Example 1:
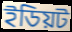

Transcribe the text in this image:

ইডিয়ট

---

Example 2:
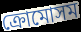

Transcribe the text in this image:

ক্রোমোসম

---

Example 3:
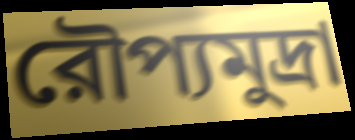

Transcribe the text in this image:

রৌপ্যমুদ্রা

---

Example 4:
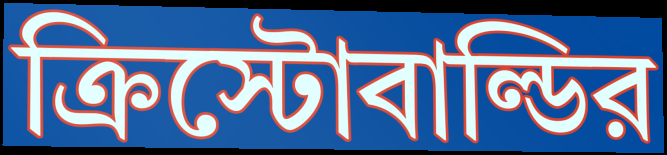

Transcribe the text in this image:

ক্রিস্টোবাল্ডির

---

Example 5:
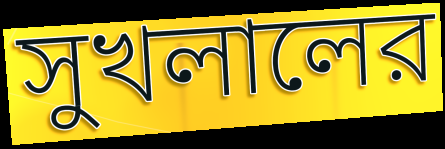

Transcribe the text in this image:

সুখলালের